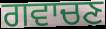
ਗਵਾਚਣ